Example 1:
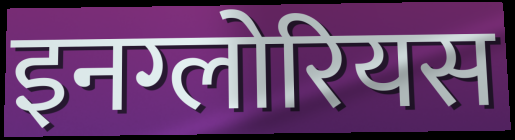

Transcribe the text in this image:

इनग्लोरियस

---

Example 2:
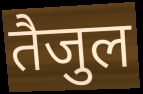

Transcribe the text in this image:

तैजुल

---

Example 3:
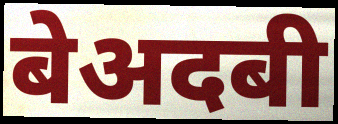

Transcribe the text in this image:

बेअदबी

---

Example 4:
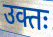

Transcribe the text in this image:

उक्तः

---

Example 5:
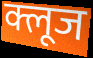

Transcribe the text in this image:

क्लूज